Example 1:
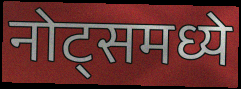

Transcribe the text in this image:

नोट्समध्ये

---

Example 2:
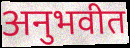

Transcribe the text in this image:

अनुभवीत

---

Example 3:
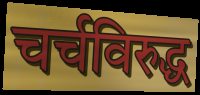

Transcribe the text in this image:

चर्चविरुद्ध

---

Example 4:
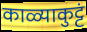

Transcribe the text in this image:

काळ्याकुट्टं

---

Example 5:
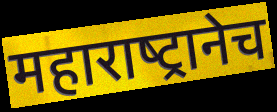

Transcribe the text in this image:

महाराष्ट्रानेच